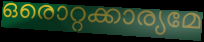
ഒരൊറ്റക്കാര്യമേ